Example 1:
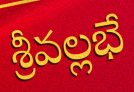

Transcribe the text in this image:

శ్రీవల్లభే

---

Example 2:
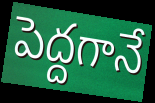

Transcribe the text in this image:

పెద్దగానే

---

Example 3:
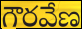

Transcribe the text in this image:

గౌరవేణ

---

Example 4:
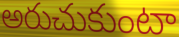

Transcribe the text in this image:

అరుచుకుంటా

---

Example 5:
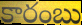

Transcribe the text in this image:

కారంబు